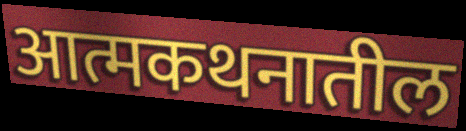
आत्मकथनातील